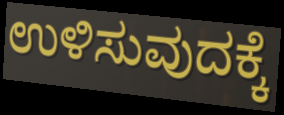
ಉಳಿಸುವುದಕ್ಕೆ